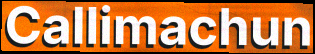
Callimachun